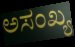
ಅಸಂಖ್ಯ